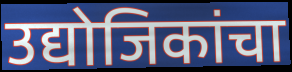
उद्योजिकांचा